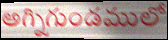
అగ్నిగుండములో